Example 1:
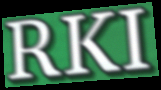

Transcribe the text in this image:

RKI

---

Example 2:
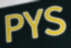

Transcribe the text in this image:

PYS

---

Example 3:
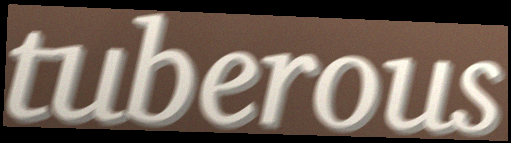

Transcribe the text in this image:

tuberous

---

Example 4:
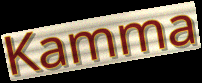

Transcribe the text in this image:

Kamma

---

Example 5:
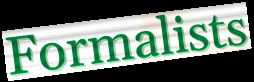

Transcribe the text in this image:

Formalists